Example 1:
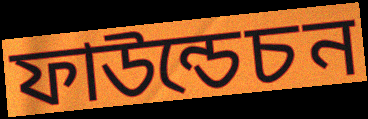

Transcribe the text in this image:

ফাউন্ডেচন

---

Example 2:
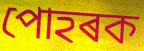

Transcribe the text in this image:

পোহৰক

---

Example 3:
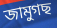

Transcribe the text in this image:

জামুগছ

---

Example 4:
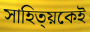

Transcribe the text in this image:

সাহিত্য়কেই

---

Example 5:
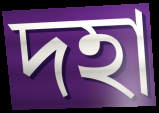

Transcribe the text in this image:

দহা